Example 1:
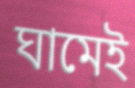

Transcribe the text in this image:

ঘামেই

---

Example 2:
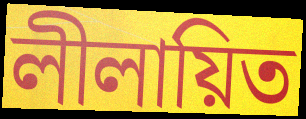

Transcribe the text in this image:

লীলায়িত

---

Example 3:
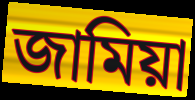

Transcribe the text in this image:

জামিয়া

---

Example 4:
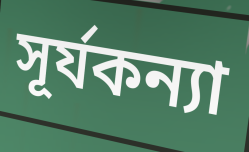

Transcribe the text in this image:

সূর্যকন্যা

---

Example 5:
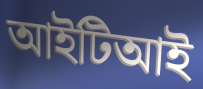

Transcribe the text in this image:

আইটিআই